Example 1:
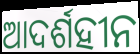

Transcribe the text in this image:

ଆଦର୍ଶହୀନ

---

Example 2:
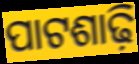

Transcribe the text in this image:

ପାଟଶାଢ଼ି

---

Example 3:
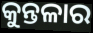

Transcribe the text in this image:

କୁନ୍ତଳାର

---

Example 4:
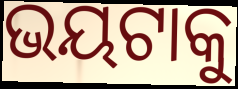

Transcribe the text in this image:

ଭୟଟାକୁ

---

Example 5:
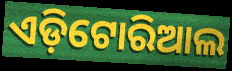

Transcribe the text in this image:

ଏଡ଼ିଟୋରିଆଲ